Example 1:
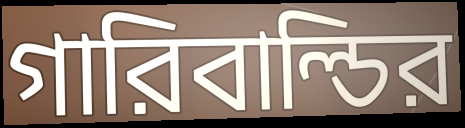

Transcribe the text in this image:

গারিবাল্ডির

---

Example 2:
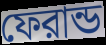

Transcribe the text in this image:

ফেরান্ড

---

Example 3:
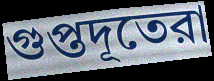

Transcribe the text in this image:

গুপ্তদূতেরা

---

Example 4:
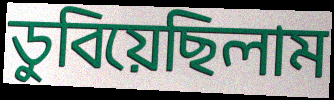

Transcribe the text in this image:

ডুবিয়েছিলাম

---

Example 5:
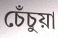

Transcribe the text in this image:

চেঁচুয়া